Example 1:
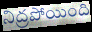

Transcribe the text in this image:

నిద్రపోయింది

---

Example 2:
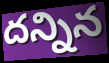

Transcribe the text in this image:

దన్నిన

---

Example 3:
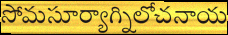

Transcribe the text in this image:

సోమసూర్యాగ్నిలోచనాయ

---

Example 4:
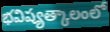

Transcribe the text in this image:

భవిష్యత్కాలంలో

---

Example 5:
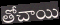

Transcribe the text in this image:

తోచాయి